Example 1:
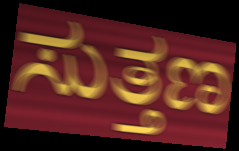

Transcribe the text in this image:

ಸುತ್ತಣ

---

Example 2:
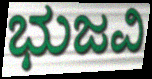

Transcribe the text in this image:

ಭುಜವಿ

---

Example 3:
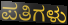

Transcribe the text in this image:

ಪತಿಗಳು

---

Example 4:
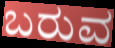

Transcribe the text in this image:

ಬರುವ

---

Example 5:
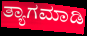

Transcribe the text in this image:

ತ್ಯಾಗಮಾಡಿ